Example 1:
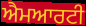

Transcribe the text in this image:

ਐਮਆਰਟੀ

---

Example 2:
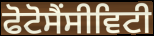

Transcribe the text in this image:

ਫੋਟੋਸੈਂਸੀਵਿਟੀ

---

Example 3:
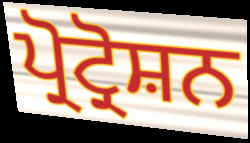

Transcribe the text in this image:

ਪ੍ਰੋਟ੍ਰੋਸ਼ਨ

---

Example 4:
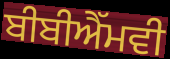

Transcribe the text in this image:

ਬੀਬੀਐੱਮਵੀ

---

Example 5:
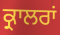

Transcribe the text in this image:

ਕ੍ਰਾਲਰਾਂ